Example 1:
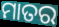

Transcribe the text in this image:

ମାତର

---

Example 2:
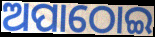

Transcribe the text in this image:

ଅପାଠୋଇ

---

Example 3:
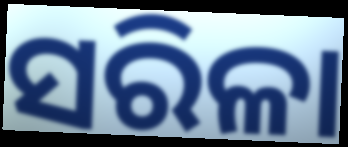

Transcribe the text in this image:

ସରିଳା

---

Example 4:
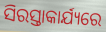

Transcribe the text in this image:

ସିରସ୍ତାକାର୍ଯ୍ୟରେ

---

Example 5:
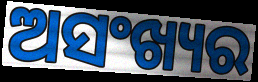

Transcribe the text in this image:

ଅସଂଖ୍ୟର